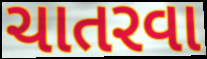
ચાતરવા